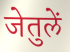
जेतुलें